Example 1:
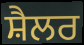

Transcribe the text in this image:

ਸ਼ੈਲਰ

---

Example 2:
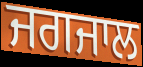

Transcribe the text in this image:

ਜਗਜਾਲ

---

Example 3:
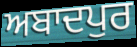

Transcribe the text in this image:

ਅਬਾਦਪੁਰ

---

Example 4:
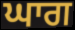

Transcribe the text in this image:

ਘਾਗ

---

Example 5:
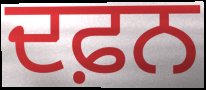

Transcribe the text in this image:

ਦਫ਼ਨ